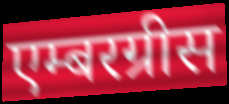
एम्बरग्रीस